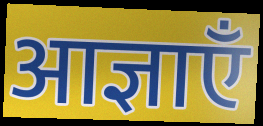
आज्ञाएँ